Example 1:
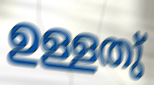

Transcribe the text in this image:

ഉള്ളതു്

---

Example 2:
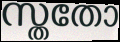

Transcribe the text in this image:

സ്തതോ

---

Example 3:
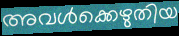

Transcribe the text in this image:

അവൾക്കെഴുതിയ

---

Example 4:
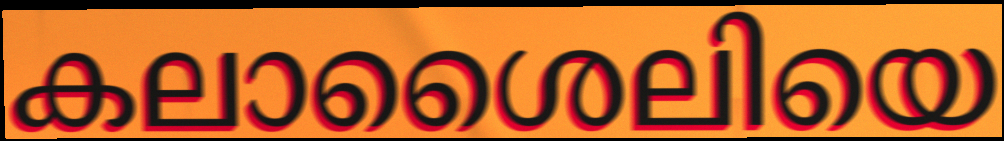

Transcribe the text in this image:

കലാശൈലിയെ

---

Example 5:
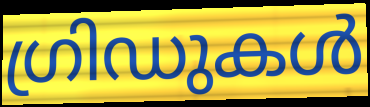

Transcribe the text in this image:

ഗ്രിഡുകൾ